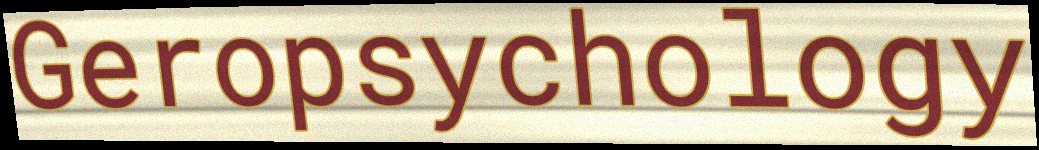
Geropsychology